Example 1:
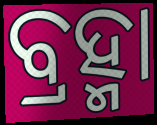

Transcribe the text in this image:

ବ୍ରହ୍ମା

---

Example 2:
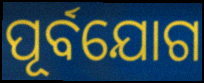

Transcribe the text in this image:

ପୂର୍ବଯୋଗ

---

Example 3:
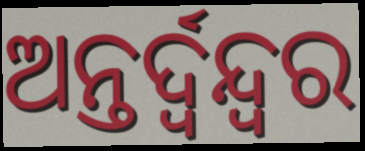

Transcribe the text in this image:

ଅନ୍ତର୍ଦ୍ୱନ୍ଦ୍ୱର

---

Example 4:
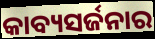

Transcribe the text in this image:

କାବ୍ୟସର୍ଜନାର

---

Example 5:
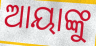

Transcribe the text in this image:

ଆୟାଙ୍କୁ